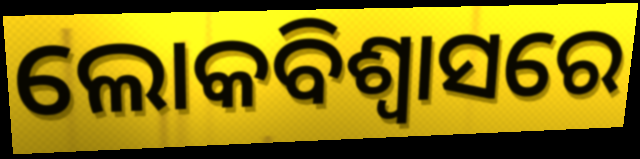
ଲୋକବିଶ୍ୱାସରେ